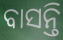
ବାସନ୍ତି